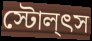
স্টোল্ৎস